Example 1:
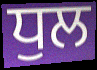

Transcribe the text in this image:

ਧੁਲ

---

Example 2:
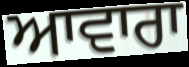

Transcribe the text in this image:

ਆਵਾਰਾ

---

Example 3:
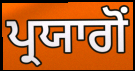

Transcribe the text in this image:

ਪ੍ਰਯਾਗੋਂ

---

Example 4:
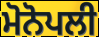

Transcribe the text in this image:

ਮੋਨੋਪਲੀ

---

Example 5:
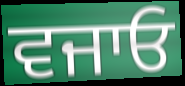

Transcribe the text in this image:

ਵਜਾਓ